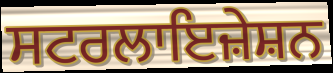
ਸਟਰਲਾਇਜ਼ੇਸ਼ਨ